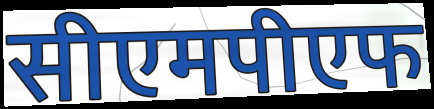
सीएमपीएफ